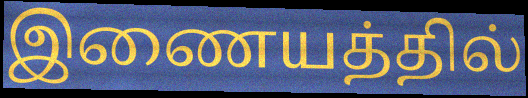
இணையத்தில்